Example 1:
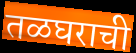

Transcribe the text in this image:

तळघराची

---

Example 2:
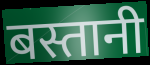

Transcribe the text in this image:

बस्तानी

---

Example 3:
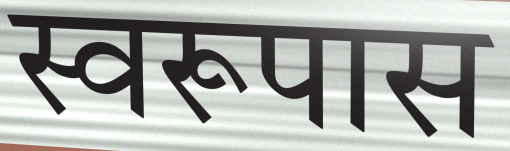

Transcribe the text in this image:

स्वरूपास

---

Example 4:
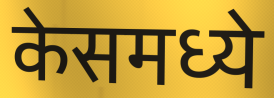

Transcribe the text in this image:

केसमध्ये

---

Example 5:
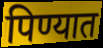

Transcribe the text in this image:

पिण्यात